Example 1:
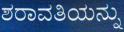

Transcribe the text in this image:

ಶರಾವತಿಯನ್ನು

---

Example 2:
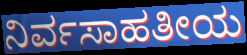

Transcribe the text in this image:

ನಿರ್ವಸಾಹತೀಯ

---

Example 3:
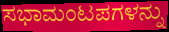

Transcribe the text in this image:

ಸಭಾಮಂಟಪಗಳನ್ನು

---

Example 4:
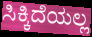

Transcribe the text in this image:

ಸಿಕ್ಕಿದೆಯಲ್ಲ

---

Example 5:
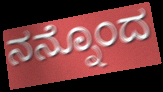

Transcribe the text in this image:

ನನ್ನೊಂದ